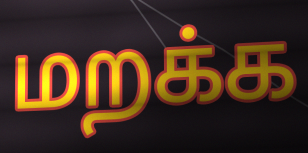
மறக்க